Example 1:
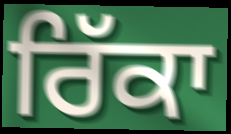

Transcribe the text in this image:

ਰਿੱਕਾ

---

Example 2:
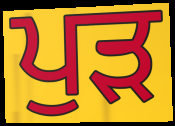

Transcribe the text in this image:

ਪੁੜ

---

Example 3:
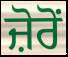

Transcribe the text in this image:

ਜ਼ੋਰੋਂ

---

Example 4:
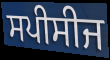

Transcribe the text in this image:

ਸਪੀਸੀਜ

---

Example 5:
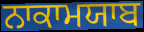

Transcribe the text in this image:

ਨਾਕਾਮਯਾਬ